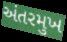
અંતરમુખ